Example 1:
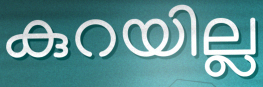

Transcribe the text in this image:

കുറയില്ല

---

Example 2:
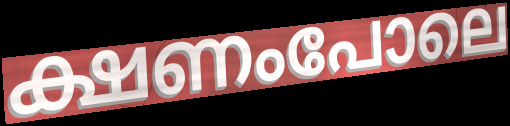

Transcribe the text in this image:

ക്ഷണംപോലെ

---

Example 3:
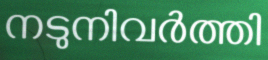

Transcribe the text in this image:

നടുനിവർത്തി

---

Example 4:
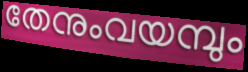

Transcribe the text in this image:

തേനുംവയമ്പും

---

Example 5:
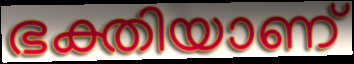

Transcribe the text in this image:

ഭക്തിയാണ്